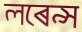
লৰেন্স